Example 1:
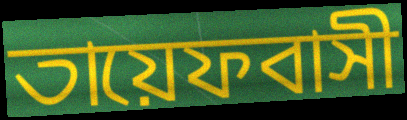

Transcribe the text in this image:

তায়েফবাসী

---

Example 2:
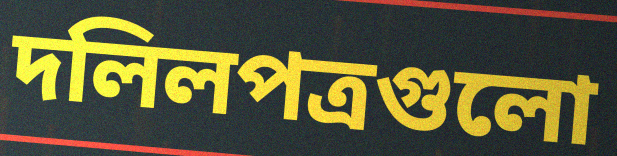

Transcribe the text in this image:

দলিলপত্রগুলো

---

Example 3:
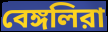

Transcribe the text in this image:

বেঙ্গলিরা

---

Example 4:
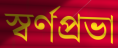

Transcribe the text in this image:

স্বর্ণপ্রভা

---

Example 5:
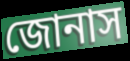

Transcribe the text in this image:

জোনাস